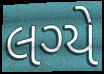
લગ્યે